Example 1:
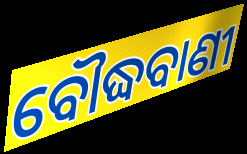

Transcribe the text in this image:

ବୌଦ୍ଧବାଣୀ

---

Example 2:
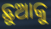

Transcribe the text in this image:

ଛୁଆକୁ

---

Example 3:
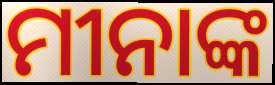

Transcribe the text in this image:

ମୀନାଙ୍କ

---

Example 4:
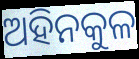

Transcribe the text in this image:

ଅହିନକୁଳ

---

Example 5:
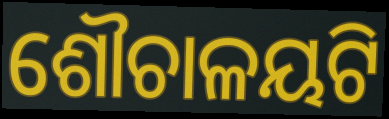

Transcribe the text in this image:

ଶୌଚାଳୟଟି